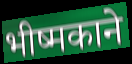
भीष्मकाने